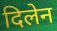
दिलेन